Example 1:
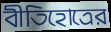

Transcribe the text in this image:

বীতিহোত্রের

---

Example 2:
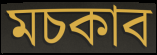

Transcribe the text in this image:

মচকাব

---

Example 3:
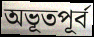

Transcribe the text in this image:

অভূতপূর্ব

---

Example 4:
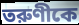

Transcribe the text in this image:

তরুণীকে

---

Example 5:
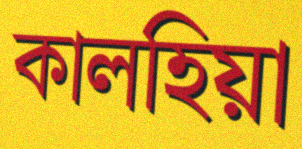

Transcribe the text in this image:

কালহিয়া